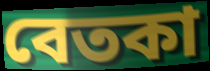
বেতকা